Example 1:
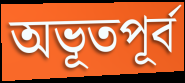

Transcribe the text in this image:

অভূতপূৰ্ব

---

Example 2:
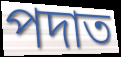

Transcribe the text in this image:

পদাত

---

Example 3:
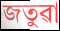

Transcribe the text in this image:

জতুৱা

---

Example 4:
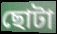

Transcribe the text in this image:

ছোটা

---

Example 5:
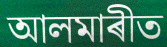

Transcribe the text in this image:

আলমাৰীত